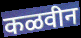
कळवीन